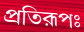
প্রতিরূপঃ